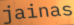
jainas